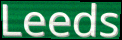
Leeds